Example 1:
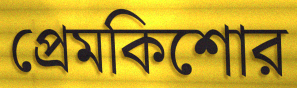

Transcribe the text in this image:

প্রেমকিশোর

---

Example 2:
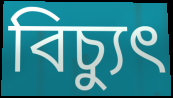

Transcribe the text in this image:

বিচ্যুৎ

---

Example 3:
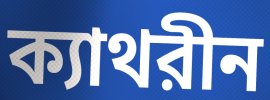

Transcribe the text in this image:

ক্যাথরীন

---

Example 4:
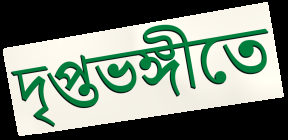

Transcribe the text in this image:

দৃপ্তভঙ্গীতে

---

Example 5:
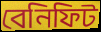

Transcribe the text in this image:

বেনিফিট